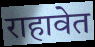
राहावेत